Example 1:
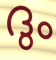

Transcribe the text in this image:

ദും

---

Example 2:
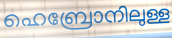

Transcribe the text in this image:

ഹെബ്രോനിലുള്ള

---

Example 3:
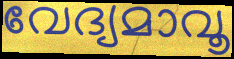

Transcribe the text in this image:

വേദ്യമാവൂ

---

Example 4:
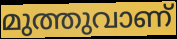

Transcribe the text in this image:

മുത്തുവാണ്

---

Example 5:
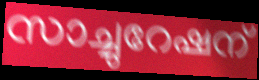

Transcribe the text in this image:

സാച്ചുറേഷന്